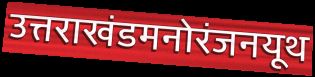
उत्तराखंडमनोरंजनयूथ